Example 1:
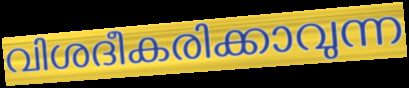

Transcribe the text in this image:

വിശദീകരിക്കാവുന്ന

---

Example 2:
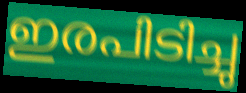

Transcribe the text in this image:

ഇരപിടിച്ചു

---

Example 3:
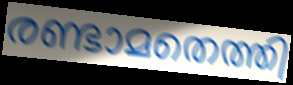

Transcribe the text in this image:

രണ്ടാമതെത്തി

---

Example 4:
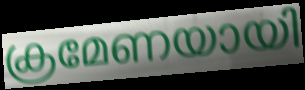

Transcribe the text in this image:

ക്രമേണയായി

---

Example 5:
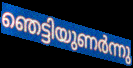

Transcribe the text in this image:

ഞെട്ടിയുണർന്നു